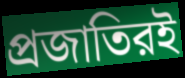
প্রজাতিরই